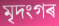
মৃদংগৰ